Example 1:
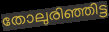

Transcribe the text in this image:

തോലുരിഞ്ഞിട്ട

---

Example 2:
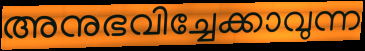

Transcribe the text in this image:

അനുഭവിച്ചേക്കാവുന്ന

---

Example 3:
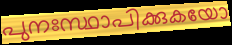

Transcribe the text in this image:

പുനഃസ്ഥാപിക്കുകയോ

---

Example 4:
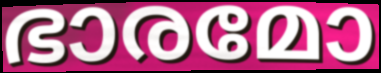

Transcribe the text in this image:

ഭാരമോ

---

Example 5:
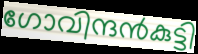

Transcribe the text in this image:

ഗോവിന്ദൻകുട്ടി